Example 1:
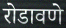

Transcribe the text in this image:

रोडावणे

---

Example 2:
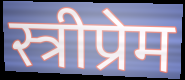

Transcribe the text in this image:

स्त्रीप्रेम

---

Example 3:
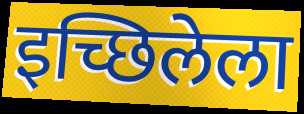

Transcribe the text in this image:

इच्छिलेला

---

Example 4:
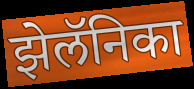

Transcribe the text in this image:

झेलॅनिका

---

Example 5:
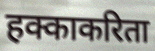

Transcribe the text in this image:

हक्काकरिता